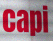
capi